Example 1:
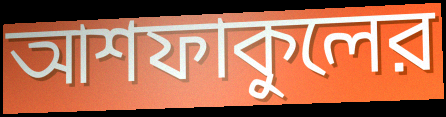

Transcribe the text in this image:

আশফাকুলের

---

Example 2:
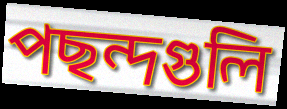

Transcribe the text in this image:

পছন্দগুলি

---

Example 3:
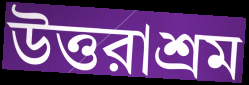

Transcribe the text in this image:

উত্তরাশ্রম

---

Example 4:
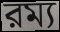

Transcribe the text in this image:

রম্য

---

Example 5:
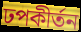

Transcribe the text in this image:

ঢপকীর্তন